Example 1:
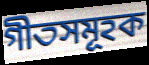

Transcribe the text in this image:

গীতসমূহক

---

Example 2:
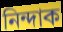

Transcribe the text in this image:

নিন্দাক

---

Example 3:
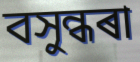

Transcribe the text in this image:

বসুন্ধৰা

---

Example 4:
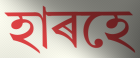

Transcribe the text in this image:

হাৰহে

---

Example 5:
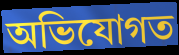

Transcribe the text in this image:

অভিযোগত